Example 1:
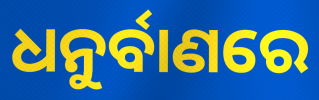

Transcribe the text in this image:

ଧନୁର୍ବାଣରେ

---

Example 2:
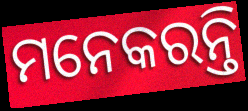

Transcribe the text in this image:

ମନେକରନ୍ତି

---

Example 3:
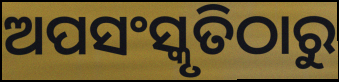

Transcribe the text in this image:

ଅପସଂସ୍କୃତିଠାରୁ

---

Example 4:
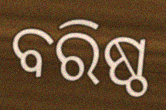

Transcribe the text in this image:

ବରିଷ୍ଠ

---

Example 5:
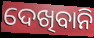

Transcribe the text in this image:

ଦେଖିବାନି